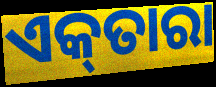
ଏକ୍‌ତାରା